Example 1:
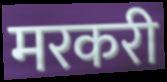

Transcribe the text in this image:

मरकरी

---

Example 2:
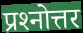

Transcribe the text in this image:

प्रश्‍नोत्तर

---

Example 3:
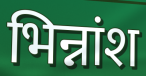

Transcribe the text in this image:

भिन्नांश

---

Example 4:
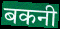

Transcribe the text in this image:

बकनी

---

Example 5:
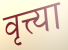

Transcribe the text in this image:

वृत्त्या